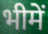
भीमें